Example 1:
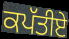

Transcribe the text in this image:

ਕਪੱਤੀਏ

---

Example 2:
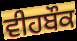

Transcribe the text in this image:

ਵੀਹਬੌਕ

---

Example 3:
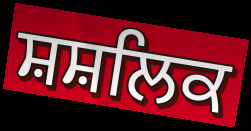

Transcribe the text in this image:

ਸ਼ਸ਼ਲਿਕ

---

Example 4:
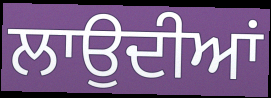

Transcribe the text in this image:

ਲਾਉਦੀਆਂ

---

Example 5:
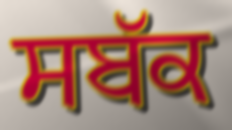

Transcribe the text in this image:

ਸਬੱਕ